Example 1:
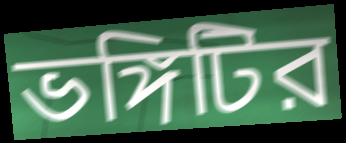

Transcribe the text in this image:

ভঙ্গিটির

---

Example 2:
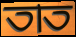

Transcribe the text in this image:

তাত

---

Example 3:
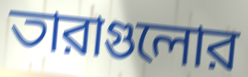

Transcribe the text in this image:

তারাগুলোর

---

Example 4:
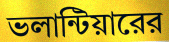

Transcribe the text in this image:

ভলান্টিয়ারের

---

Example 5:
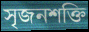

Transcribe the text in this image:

সৃজনশক্তি